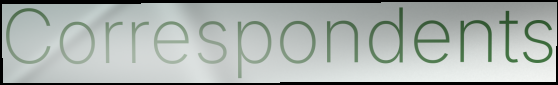
Correspondents